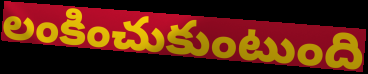
లంకించుకుంటుంది